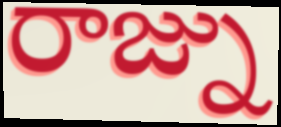
రాజ్ను